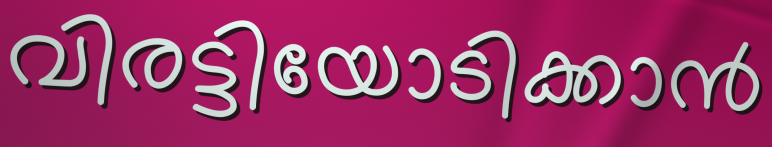
വിരട്ടിയോടിക്കാൻ